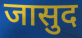
जासुद